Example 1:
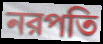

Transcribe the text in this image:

নরপতি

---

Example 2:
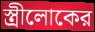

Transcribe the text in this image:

স্ত্রীলোকের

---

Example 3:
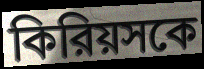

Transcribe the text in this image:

কিরিয়সকে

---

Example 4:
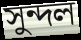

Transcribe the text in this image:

সুন্দল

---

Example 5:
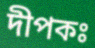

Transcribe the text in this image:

দীপকঃ